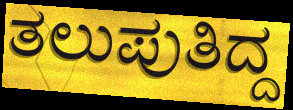
ತಲುಪುತಿದ್ದ